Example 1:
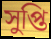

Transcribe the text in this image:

সুপ্তি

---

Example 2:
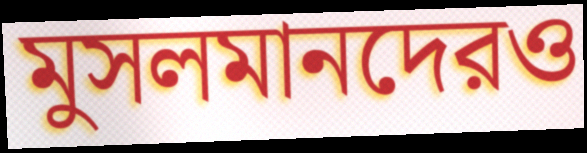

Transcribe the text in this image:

মুসলমানদেরও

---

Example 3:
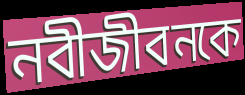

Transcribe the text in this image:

নবীজীবনকে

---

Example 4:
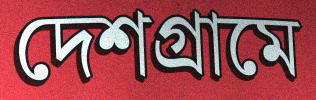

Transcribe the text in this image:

দেশগ্রামে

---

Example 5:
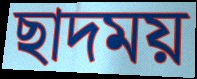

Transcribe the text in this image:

ছাদময়